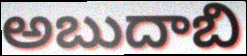
అబుదాబి